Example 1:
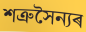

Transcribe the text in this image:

শত্ৰুসৈন্যৰ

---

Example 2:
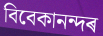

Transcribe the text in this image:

বিবেকানন্দৰ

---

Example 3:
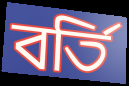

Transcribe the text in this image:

বৰ্তি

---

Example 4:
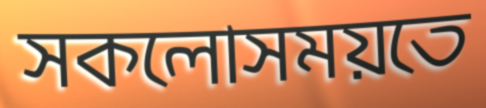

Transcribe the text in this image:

সকলোসময়তে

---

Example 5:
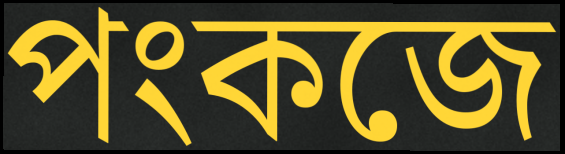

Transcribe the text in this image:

পংকজে